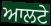
ਆਲਟੇ